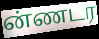
ன்ணடர